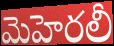
మెహెరలీ